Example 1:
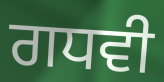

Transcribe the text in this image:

ਗਧਵੀ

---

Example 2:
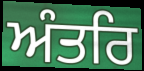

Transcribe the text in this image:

ਅੰਤਰਿ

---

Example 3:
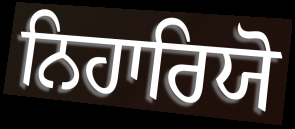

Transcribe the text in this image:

ਨਿਹਾਰਿਯੋ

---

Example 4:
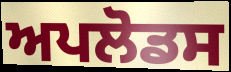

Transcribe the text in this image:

ਅਪਲੋਡਸ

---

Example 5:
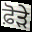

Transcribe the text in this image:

ਫ਼ੋੜੇ